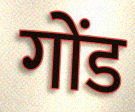
गोंड